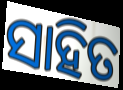
ସାହିତ